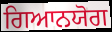
ਗਿਆਨਯੋਗ